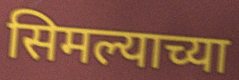
सिमल्याच्या